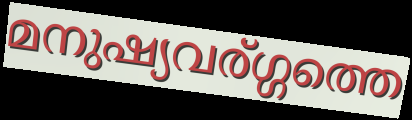
മനുഷ്യവര്ഗ്ഗത്തെ